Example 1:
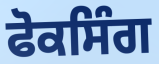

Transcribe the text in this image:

ਫੋਕਸਿੰਗ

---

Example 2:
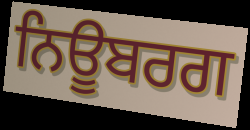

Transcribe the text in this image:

ਨਿਊਬਰਗ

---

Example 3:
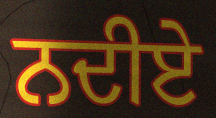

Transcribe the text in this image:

ਨਦੀਏ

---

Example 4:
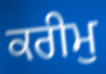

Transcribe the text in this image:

ਕਰੀਮੁ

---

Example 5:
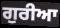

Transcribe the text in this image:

ਗੁਰੀਆ